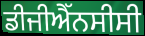
ਡੀਜੀਐੱਨਸੀਸੀ